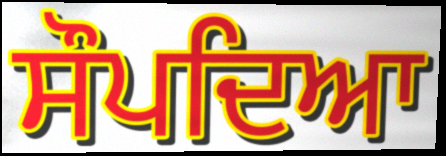
ਸੌਪਦਿਆ